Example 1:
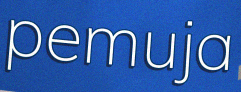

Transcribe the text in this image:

pemuja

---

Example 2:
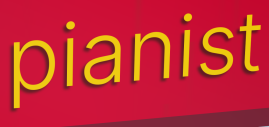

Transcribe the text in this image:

pianist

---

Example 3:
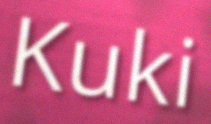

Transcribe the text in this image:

Kuki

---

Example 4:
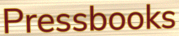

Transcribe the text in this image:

Pressbooks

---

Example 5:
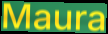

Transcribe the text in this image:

Maura